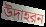
উদাহরন